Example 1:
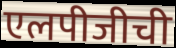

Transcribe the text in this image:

एलपीजीची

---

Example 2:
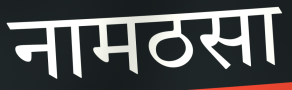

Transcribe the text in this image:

नामठसा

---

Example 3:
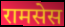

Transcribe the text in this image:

रामसेस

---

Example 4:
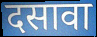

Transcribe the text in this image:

दसावा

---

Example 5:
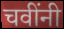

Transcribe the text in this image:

चवींनी